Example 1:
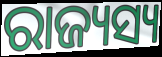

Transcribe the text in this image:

ରାଜ୍ୟସ୍ୟ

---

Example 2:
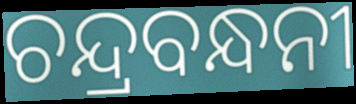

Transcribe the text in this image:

ଚନ୍ଦ୍ରବନ୍ଧନୀ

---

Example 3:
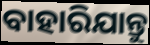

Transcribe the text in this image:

ବାହାରିଯାନ୍ତୁ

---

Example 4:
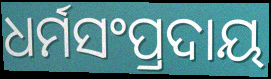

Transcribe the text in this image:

ଧର୍ମସଂପ୍ରଦାୟ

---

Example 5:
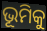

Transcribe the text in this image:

ଭୂମିକୁ